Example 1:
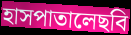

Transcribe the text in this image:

হাসপাতালেছবি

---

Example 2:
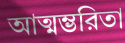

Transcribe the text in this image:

আত্মম্ভরিতা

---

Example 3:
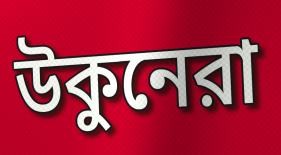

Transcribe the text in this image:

উকুনেরা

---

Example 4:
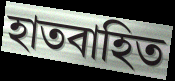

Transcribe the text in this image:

হাতবাহিত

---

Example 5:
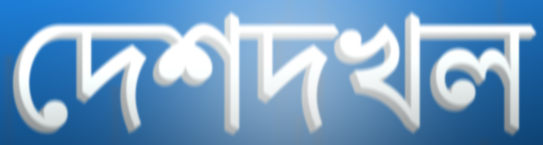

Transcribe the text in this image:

দেশদখল